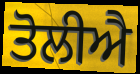
ਤੋਲੀਐ